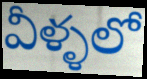
వీళ్ళలో